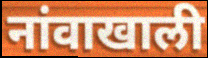
नांवाखाली